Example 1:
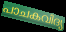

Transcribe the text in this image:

പാചകവിദ്യ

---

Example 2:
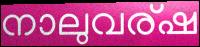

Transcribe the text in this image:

നാലുവര്ഷ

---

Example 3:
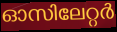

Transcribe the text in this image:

ഓസിലേറ്റർ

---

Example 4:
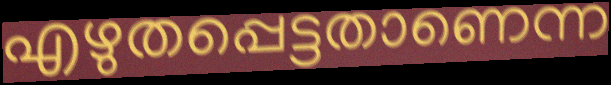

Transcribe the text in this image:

എഴുതപ്പെട്ടതാണെന്ന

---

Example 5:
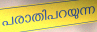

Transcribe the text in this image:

പരാതിപറയുന്ന